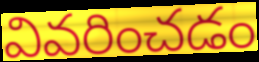
వివరించడం